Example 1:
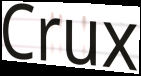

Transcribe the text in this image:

Crux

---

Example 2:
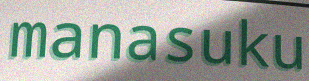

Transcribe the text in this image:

manasuku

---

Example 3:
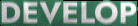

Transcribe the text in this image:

DEVELOP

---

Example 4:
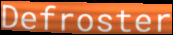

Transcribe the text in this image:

Defroster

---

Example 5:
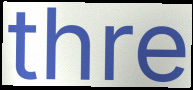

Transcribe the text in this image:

thre